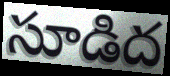
సూడిద